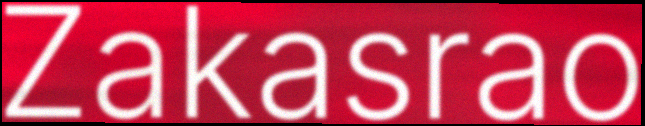
Zakasrao